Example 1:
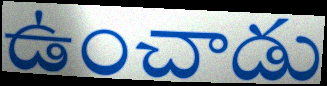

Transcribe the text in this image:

ఉంచాడు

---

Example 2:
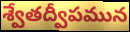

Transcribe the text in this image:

శ్వేతద్వీపమున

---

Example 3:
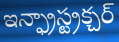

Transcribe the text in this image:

ఇన్ఫ్రాస్ట్రక్చర్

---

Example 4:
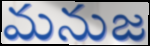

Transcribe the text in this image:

మనుజ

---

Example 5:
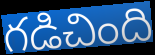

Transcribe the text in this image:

గడిచింది